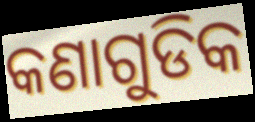
କଣାଗୁଡିକ